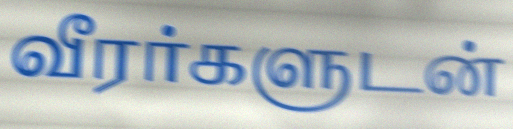
வீரர்களுடன்